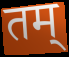
तम्